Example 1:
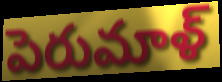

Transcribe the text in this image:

పెరుమాళ్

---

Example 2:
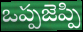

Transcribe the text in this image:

ఒప్పజెప్పి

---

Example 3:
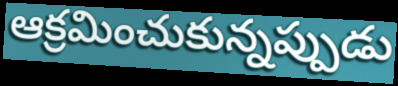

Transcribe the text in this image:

ఆక్రమించుకున్నప్పుడు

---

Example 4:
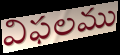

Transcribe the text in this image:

విఫలము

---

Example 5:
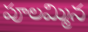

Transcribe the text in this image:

పూలమ్మిన